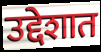
उद्देशात